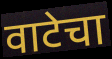
वाटेचा